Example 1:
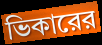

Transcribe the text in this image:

ভিকারের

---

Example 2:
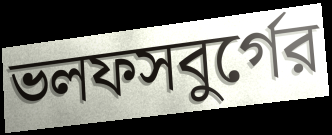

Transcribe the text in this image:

ভলফসবুর্গের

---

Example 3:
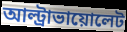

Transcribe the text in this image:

আল্ট্রাভায়োলেট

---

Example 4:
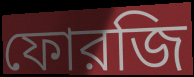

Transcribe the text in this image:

ফোরজি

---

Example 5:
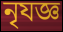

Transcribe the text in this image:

নৃযজ্ঞ